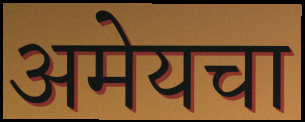
अमेयचा